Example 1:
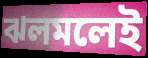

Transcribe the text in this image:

ঝলমলেই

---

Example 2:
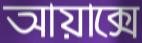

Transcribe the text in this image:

আয়াক্সে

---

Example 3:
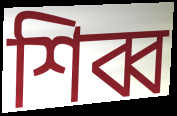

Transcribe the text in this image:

শিব্ব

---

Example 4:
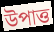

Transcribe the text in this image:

উপাত্ত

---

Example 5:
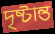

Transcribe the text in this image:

দৃষ্টান্ত